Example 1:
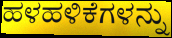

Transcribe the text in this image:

ಹಳಹಳಿಕೆಗಳನ್ನು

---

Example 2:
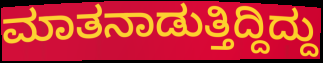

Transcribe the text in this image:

ಮಾತನಾಡುತ್ತಿದ್ದಿದ್ದು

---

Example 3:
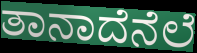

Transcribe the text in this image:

ತಾನಾದೆನೆಲೆ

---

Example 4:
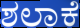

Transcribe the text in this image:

ಶಲಾಕೆ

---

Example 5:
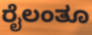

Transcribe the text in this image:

ರೈಲಂತೂ